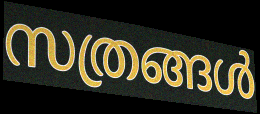
സത്രങ്ങൾ